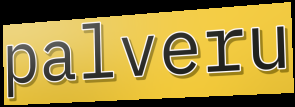
palveru